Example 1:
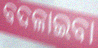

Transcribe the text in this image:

ବଦଳାଇବା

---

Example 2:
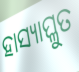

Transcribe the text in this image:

ହାସ୍ୟାପ୍ଳୁତ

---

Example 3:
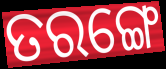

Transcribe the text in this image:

ତରଙ୍ଗେ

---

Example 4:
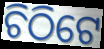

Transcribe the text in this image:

ଚିଠିଟେ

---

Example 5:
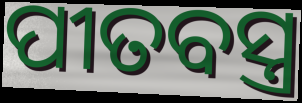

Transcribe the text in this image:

ପୀତବସ୍ତ୍ର